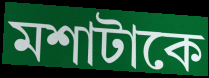
মশাটাকে